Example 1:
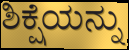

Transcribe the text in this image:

ಶಿಕ್ಷೆಯನ್ನು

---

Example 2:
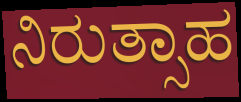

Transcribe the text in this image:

ನಿರುತ್ಸಾಹ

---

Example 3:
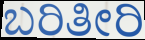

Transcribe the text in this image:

ಬರಿತೀರಿ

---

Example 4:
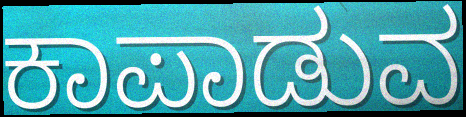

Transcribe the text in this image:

ಕಾಪಾಡುವ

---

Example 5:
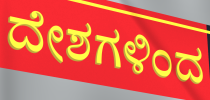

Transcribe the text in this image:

ದೇಶಗಳಿಂದ